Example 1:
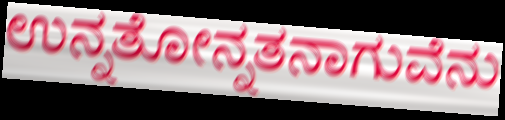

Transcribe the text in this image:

ಉನ್ನತೋನ್ನತನಾಗುವೆನು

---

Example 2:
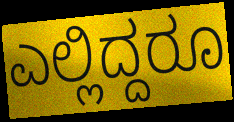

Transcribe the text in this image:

ಎಲ್ಲಿದ್ದರೂ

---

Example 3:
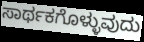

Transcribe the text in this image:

ಸಾರ್ಥಕಗೊಳ್ಳುವುದು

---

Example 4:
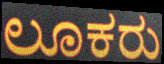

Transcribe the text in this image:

ಲೂಕರು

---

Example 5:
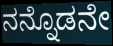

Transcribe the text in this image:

ನನ್ನೊಡನೇ